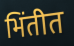
भिंतीत